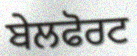
ਬੇਲਫੋਰਟ